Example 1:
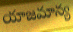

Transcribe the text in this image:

యాజమాన్య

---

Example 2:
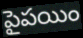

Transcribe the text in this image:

పైపయిం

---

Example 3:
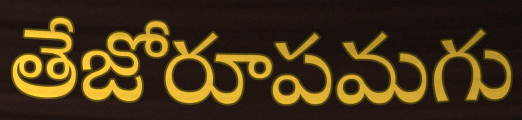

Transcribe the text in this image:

తేజోరూపమగు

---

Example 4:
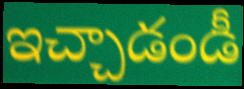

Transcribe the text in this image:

ఇచ్చాడండీ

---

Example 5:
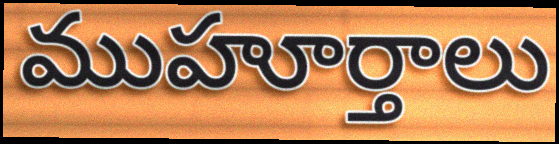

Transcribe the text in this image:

ముహూర్తాలు